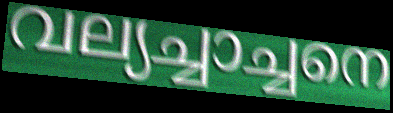
വല്യച്ചാച്ചനെ